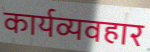
कार्यव्यवहार